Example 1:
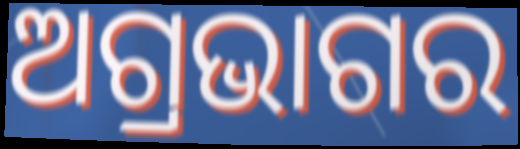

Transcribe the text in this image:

ଅଗ୍ରଭାଗର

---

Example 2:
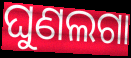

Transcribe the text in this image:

ଘୁଣଲଗା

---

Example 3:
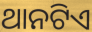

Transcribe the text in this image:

ଥାନଟିଏ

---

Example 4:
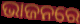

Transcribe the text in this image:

ଭାଜନରେ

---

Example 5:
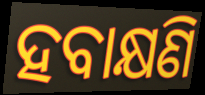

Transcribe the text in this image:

ହବାକ୍ଷଣି